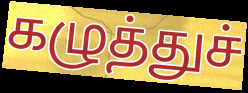
கழுத்துச்